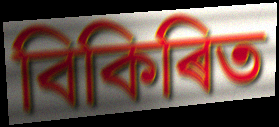
বিকিৰিত